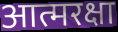
आत्मरक्षा